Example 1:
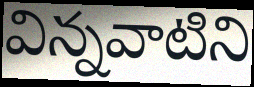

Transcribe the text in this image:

విన్నవాటిని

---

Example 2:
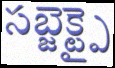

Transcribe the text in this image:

సబ్జెక్ట్పై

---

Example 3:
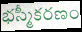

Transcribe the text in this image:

భస్మీకరణం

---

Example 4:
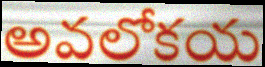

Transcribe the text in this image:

అవలోకయ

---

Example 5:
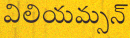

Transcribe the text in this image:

విలియమ్సన్